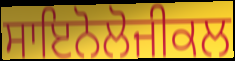
ਸਾਇਨੋਲੋਜੀਕਲ